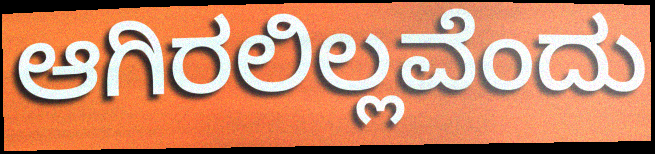
ಆಗಿರಲಿಲ್ಲವೆಂದು